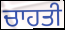
ਚਾਹਤੀ